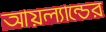
আয়ল্যান্ডের